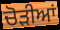
ਚੋੜੀਆਂ